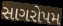
સાગરોપમ